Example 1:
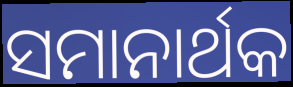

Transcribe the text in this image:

ସମାନାର୍ଥକ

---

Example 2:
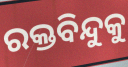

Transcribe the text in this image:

ରକ୍ତବିନ୍ଦୁକୁ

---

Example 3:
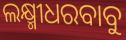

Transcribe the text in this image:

ଲକ୍ଷ୍ମୀଧରବାବୁ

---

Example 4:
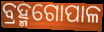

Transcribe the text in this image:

ବ୍ରହ୍ମଗୋପାଳ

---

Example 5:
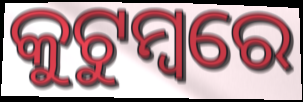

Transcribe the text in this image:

କୁଟୁମ୍ଵରେ